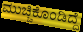
ಮುಚ್ಚಿಕೊಂಡಿದ್ದೆ